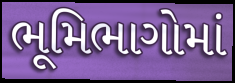
ભૂમિભાગોમાં